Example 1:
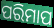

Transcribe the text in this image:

ପରିମାପ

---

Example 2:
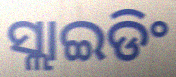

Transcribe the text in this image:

ସ୍ଲାଇଡିଂ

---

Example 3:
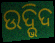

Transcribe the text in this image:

ଉଦ୍ଭିଦ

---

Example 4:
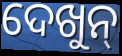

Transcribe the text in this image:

ଦେଖୁନ୍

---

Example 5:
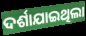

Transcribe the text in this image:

ଦର୍ଶାଯାଇଥିଲା